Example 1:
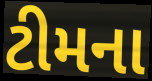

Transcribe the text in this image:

ટીમના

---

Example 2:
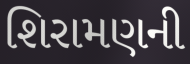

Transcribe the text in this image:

શિરામણની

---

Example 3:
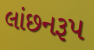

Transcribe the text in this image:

લાંછનરૂપ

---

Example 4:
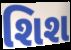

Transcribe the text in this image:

શિશ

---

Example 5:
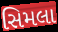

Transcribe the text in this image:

સિમલા